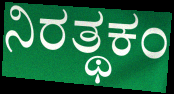
ನಿರತ್ಥಕಂ